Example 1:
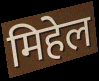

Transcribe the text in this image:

मिहेल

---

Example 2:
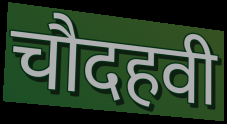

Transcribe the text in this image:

चौदहवी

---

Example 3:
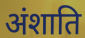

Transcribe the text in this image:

अंशाति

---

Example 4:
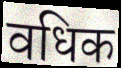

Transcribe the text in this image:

वधिक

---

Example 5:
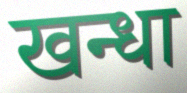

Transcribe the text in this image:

खन्धा